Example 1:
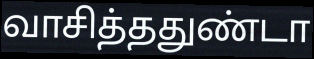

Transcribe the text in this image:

வாசித்ததுண்டா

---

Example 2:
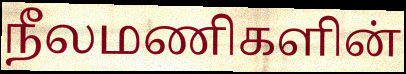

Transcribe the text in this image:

நீலமணிகளின்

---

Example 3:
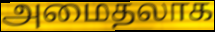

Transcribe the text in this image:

அமைதலாக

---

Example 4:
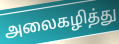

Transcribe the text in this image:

அலைகழித்து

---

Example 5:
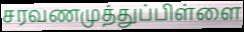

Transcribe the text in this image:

சரவணமுத்துப்பிள்ளை